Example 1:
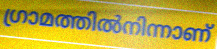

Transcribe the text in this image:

ഗ്രാമത്തിൽനിന്നാണ്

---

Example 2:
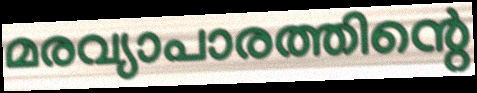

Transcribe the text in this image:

മരവ്യാപാരത്തിന്റെ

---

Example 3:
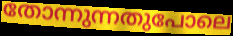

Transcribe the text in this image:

തോന്നുന്നതുപോലെ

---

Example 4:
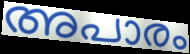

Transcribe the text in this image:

അപാരം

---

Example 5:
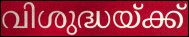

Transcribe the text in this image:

വിശുദ്ധയ്ക്ക്